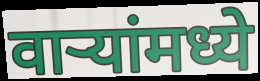
वाऱ्यांमध्ये